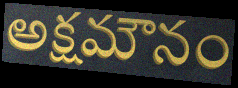
అక్షమౌనం